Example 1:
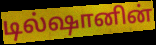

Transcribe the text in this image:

டில்ஷானின்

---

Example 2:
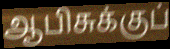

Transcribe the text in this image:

ஆபிசுக்குப்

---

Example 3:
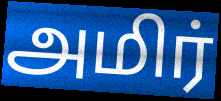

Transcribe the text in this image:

அமிர்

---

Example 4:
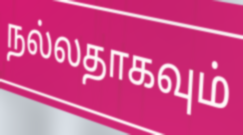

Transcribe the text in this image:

நல்லதாகவும்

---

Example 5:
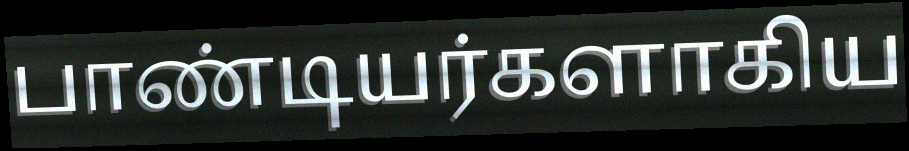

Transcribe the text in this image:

பாண்டியர்களாகிய